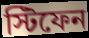
স্টিফেন